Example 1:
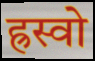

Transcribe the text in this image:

ह्रस्वो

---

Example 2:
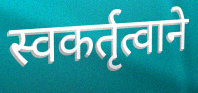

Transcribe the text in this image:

स्वकर्तृत्वाने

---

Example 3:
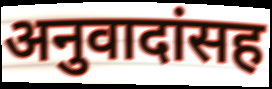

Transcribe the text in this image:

अनुवादांसह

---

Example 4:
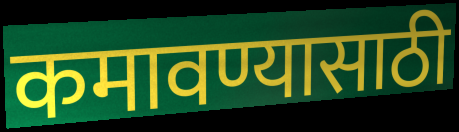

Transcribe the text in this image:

कमावण्यासाठी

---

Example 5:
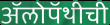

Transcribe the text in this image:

ॲलोपॅथीची